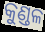
କୁଣ୍ଡଳ